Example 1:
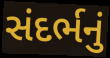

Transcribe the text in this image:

સંદર્ભનું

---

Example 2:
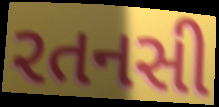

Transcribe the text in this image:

રતનસી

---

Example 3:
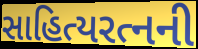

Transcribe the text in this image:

સાહિત્યરત્નની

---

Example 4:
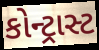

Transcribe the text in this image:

કોન્ટ્રાસ્ટ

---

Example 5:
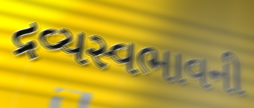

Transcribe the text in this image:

દ્રવ્યસ્વભાવની